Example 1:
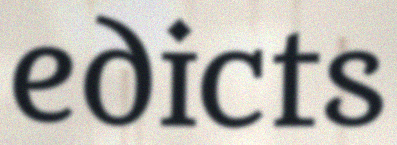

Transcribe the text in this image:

edicts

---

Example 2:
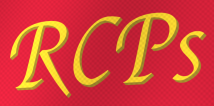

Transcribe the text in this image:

RCPs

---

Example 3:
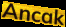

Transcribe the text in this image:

Ancak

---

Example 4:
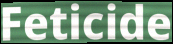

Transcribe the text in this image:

Feticide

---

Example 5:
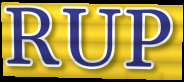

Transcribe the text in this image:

RUP